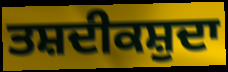
ਤਸ਼ਦੀਕਸ਼ੁਦਾ